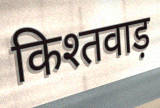
किश्तवाड़